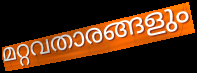
മറ്റവതാരങ്ങളും